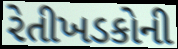
રેતીખડકોની